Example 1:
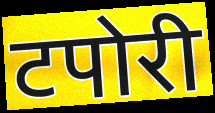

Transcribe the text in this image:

टपोरी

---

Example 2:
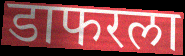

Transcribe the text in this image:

डाफरला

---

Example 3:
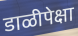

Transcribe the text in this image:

डाळीपेक्षा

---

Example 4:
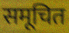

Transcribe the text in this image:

समूचित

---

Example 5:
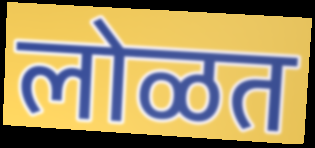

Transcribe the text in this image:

लोळत